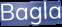
Bagla